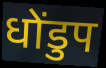
धोंडुप